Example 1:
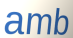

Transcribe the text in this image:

amb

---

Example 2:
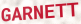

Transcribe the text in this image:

GARNETT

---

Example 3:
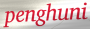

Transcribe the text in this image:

penghuni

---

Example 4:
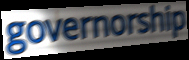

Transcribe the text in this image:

governorship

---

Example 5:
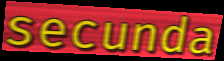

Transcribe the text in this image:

secunda